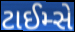
ટાઈમ્સે